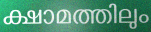
ക്ഷാമത്തിലും